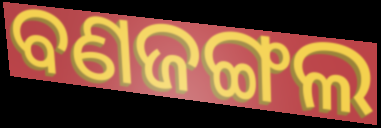
ବଣଜଙ୍ଗଲ